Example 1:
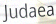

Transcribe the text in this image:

Judaea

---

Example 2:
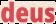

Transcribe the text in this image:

deus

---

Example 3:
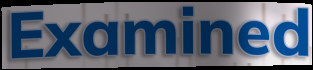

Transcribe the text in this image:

Examined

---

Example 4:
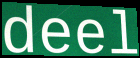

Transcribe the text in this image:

deel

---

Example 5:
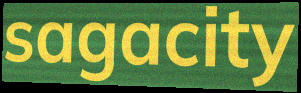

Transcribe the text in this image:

sagacity